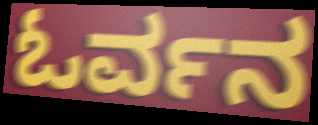
ಓರ್ವನ